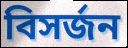
বিসৰ্জন